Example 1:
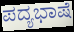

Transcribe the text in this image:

ಪದ್ಯಭಾಷೆ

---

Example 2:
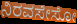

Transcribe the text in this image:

ನಿರವಸೇಸೋ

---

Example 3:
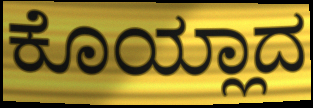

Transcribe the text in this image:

ಕೊಯ್ಲಾದ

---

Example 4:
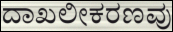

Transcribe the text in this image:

ದಾಖಲೀಕರಣವು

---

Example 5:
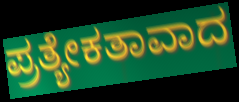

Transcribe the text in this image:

ಪ್ರತ್ಯೇಕತಾವಾದ